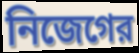
নিজেগের